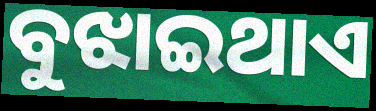
ବୁଝାଇଥାଏ